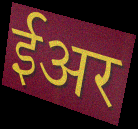
ईअर